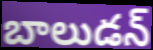
బాలుడన్